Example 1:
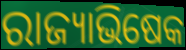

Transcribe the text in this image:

ରାଜ୍ୟାଭିଷେକ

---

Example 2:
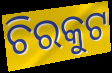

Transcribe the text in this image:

ଚିରକୁଟ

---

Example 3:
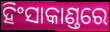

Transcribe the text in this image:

ହିଂସାକାଣ୍ଡରେ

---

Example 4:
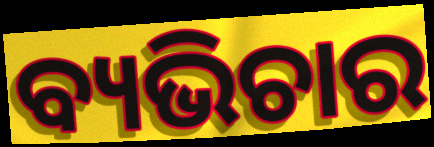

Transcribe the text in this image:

ବ୍ୟଭିଚାର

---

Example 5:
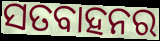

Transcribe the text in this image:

ସତବାହନର